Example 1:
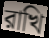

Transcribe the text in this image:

রাখি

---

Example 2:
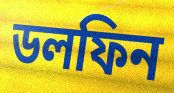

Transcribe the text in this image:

ডলফিন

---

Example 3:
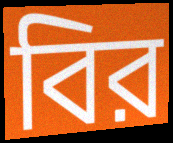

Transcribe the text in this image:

বির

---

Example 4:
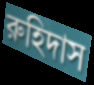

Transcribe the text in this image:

রুহিদাস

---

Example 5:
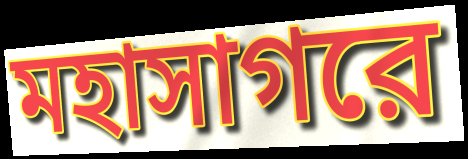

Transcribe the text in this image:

মহাসাগরে